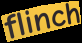
flinch